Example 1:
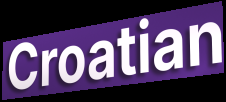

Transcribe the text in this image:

Croatian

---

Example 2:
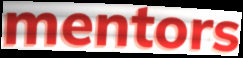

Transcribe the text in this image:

mentors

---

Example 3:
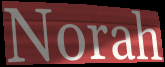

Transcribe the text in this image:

Norah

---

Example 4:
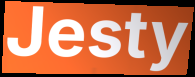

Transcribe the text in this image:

Jesty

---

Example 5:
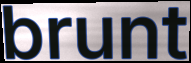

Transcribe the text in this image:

brunt